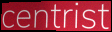
centrist